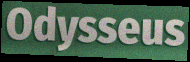
Odysseus